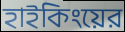
হাইকিংয়ের